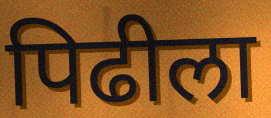
पिढीला